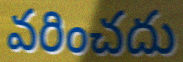
వరించదు